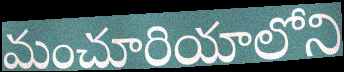
మంచూరియాలోని